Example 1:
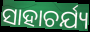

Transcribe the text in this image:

ସାହାଚର୍ଯ୍ୟ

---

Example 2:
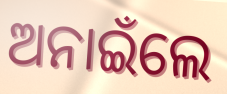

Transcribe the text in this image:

ଅନାଇଁଲେ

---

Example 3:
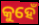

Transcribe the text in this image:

କୁହେଁ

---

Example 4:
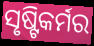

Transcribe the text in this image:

ସୃଷ୍ଟିକର୍ମର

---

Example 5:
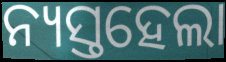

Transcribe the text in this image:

ନ୍ୟସ୍ତହେଲା